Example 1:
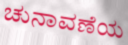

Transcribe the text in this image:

ಚುನಾವಣೆಯ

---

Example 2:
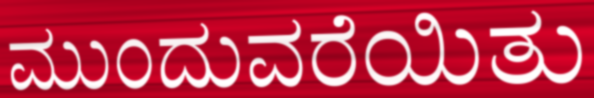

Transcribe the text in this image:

ಮುಂದುವರೆಯಿತು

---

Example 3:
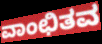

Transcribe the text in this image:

ವಾಂಛಿತವ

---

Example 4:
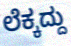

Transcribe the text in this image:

ಲೆಕ್ಕದ್ದು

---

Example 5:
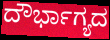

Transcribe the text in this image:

ದೌರ್ಭಾಗ್ಯದ